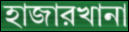
হাজারখানা